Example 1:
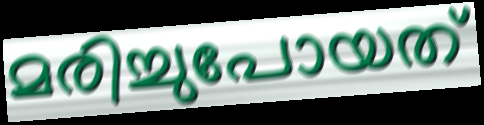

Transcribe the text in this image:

മരിച്ചുപോയത്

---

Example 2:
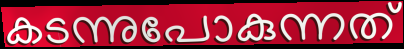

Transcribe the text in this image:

കടന്നുപോകുന്നത്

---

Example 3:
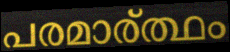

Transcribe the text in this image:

പരമാര്ത്ഥം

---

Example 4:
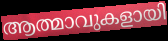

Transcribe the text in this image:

ആത്മാവുകളായി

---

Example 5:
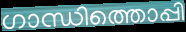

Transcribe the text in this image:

ഗാന്ധിത്തൊപ്പി